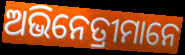
ଅଭିନେତ୍ରୀମାନେ